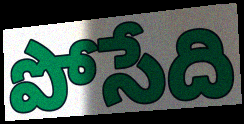
పోసేది